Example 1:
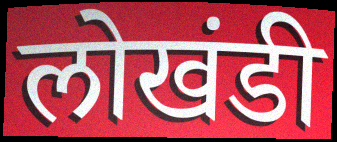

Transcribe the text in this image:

लोखंडी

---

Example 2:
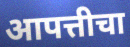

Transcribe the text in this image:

आपत्तीचा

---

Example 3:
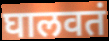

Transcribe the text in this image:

घालवतं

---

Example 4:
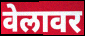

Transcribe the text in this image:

वेलावर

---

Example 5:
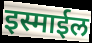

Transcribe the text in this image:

इस्माईल